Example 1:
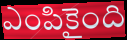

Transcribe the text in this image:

ఎంపికైంది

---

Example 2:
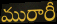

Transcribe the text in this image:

మురారీ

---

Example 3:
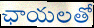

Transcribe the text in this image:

ఛాయలతో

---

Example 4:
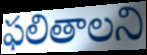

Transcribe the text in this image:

ఫలితాలని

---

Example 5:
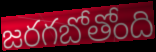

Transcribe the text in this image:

జరగబోతోంది